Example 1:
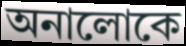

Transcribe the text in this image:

অনালোকে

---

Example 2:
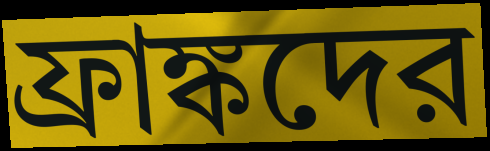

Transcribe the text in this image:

ফ্রাঙ্কদের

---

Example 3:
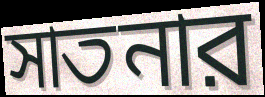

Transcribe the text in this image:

সাতনার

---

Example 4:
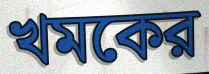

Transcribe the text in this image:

খমকের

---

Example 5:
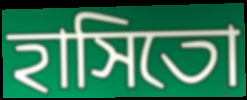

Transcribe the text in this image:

হাসিতো